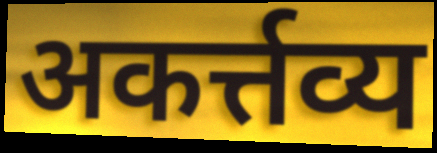
अकर्त्तव्य